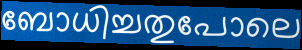
ബോധിച്ചതുപോലെ